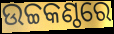
ଉଚ୍ଚକଣ୍ଠରେ